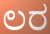
ಲರ